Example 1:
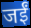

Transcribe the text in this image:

जईं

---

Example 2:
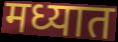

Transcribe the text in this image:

मध्यात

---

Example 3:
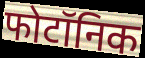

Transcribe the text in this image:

फोटॉनिक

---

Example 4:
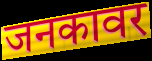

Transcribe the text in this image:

जनकावर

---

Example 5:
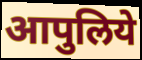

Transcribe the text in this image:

आपुलिये